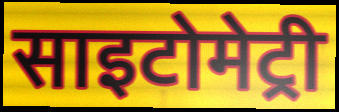
साइटोमेट्री